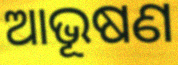
ଆଭୂଷଣ